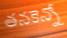
తనకెన్నో